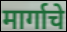
मार्गाचे